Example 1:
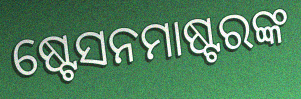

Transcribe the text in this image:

ଷ୍ଟେସନମାଷ୍ଟରଙ୍କ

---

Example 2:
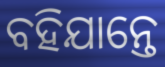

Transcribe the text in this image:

ବହିଯାନ୍ତେ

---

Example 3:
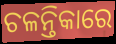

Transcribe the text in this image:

ଚଳନ୍ତିକାରେ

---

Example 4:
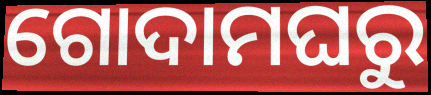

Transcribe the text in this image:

ଗୋଦାମଘରୁ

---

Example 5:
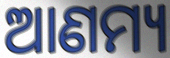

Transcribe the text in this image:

ଆଣମ୍ୟ